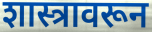
शास्त्रावरून